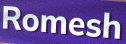
Romesh